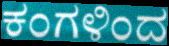
ಕಂಗಳಿಂದ